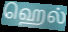
ஹெல்